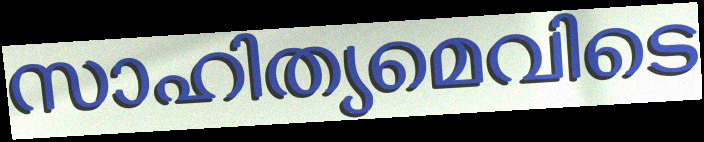
സാഹിത്യമെവിടെ